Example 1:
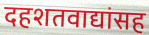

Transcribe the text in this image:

दहशतवाद्यांसह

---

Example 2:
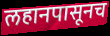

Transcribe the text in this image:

लहानपासूनच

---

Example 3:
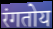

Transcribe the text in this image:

रंगतोय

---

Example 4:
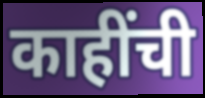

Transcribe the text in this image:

काहींची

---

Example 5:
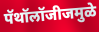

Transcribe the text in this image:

पॅथॉलॉजीजमुळे